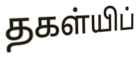
தகள்யிப்